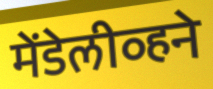
मेंडेलीव्हने